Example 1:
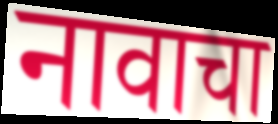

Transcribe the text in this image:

नावाचा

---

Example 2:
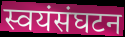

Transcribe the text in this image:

स्वयंसंघटन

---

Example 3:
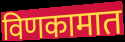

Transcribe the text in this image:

विणकामात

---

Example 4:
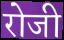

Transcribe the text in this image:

रोजी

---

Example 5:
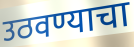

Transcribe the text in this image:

उठवण्याचा